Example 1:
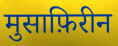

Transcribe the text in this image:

मुसाफ़िरीन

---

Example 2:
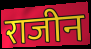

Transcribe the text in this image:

राजीन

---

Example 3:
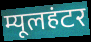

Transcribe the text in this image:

म्यूलहंटर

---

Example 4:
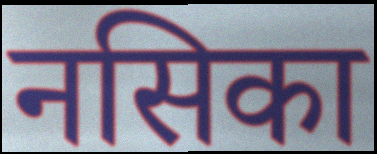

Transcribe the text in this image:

नसिका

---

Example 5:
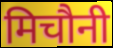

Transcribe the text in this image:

मिचौनी